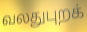
வலதுபுறக்